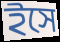
ইসে